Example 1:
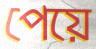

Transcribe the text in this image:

পেয়ে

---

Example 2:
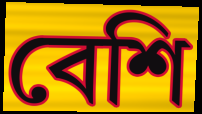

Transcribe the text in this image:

বেশি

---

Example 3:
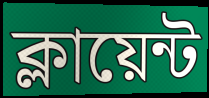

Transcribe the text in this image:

ক্লায়েন্ট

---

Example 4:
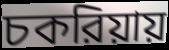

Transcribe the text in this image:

চকরিয়ায়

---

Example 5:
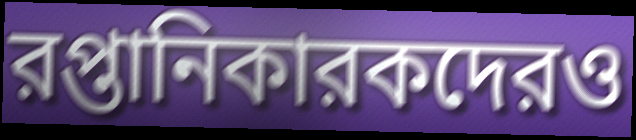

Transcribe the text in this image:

রপ্তানিকারকদেরও